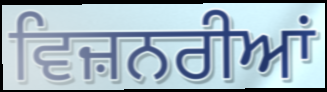
ਵਿਜ਼ਨਰੀਆਂ